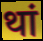
थां